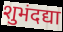
शुभंदद्या